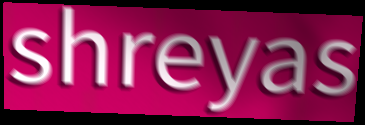
shreyas